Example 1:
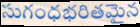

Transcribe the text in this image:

సుగంధభరితమైన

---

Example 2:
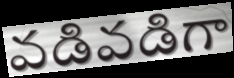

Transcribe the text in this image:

వడివడిగా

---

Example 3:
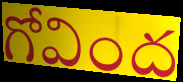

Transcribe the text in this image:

గోవింద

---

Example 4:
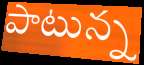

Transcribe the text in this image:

పాటున్న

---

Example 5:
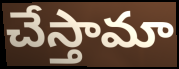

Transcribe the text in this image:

చేస్తామా